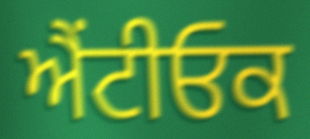
ਐਂਟੀਓਕ